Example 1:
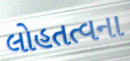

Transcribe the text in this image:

લોહતત્વના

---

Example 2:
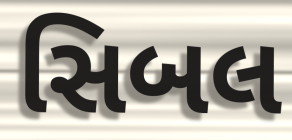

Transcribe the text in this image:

સિબલ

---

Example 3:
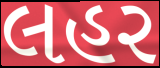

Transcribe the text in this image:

લહર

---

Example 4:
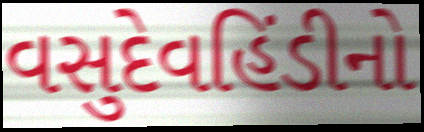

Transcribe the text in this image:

વસુદેવહિંડીનો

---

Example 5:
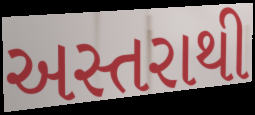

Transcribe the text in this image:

અસ્તરાથી